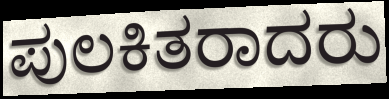
ಪುಲಕಿತರಾದರು